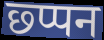
छ्प्पन